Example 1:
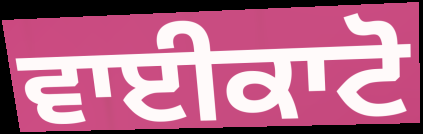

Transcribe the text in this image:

ਵਾਈਕਾਟੋ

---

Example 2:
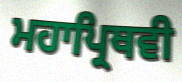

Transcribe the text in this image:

ਮਹਾਪ੍ਰਿਥਵੀ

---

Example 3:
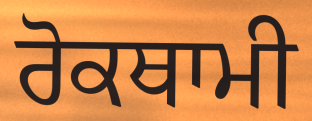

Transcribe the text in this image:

ਰੋਕਥਾਮੀ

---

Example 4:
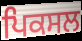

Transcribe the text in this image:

ਪਿਕਸਲ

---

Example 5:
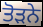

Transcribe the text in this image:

ਤੋੜਨੇ